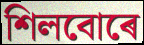
শিলবোৰে